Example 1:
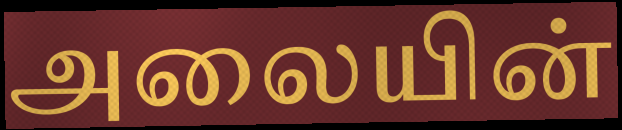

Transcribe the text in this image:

அலையின்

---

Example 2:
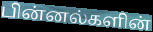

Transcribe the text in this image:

பின்னல்களின்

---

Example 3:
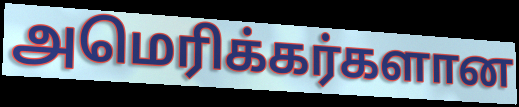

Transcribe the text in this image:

அமெரிக்கர்களான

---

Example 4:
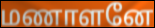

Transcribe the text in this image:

மணாளனே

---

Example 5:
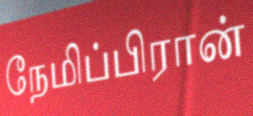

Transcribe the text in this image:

நேமிப்பிரான்